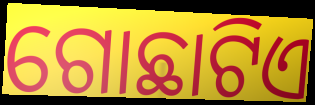
ଗୋଛାଟିଏ